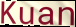
Kuan